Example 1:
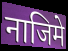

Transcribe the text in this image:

नाजिमे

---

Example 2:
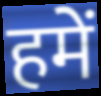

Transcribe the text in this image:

हमें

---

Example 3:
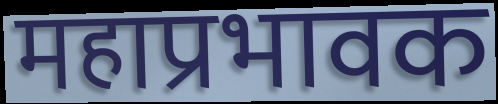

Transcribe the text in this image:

महाप्रभावक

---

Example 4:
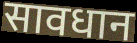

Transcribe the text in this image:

सावधान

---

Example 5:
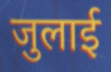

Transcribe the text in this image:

जुलाई